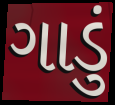
ગાડું